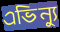
এভিন্যু